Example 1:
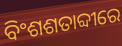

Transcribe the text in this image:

ବିଂଶଶତାବ୍ଦୀରେ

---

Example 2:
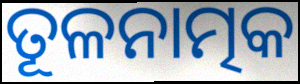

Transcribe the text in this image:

ତୂଳନାତ୍ମକ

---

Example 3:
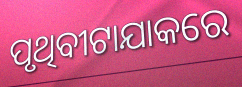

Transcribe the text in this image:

ପୃଥିବୀଟାଯାକରେ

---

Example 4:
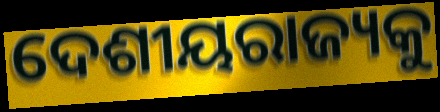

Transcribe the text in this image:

ଦେଶୀୟରାଜ୍ୟକୁ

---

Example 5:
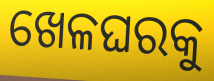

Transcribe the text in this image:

ଖେଳଘରକୁ